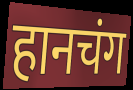
हानचंग